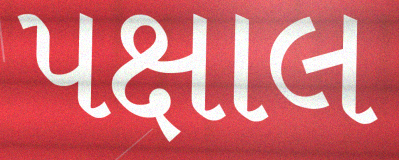
પક્ષાલ